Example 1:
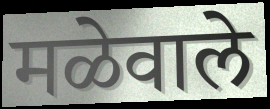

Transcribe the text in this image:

मळेवाले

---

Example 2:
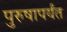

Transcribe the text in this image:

पुरुषापर्यंत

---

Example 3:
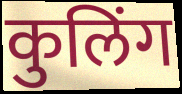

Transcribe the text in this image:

कुलिंग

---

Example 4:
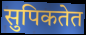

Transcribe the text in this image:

सुपिकतेत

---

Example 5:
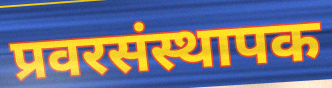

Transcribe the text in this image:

प्रवरसंस्थापक